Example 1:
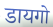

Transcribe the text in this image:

डायगो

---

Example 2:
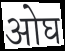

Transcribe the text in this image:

ओघ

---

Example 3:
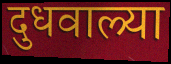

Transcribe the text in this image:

दुधवाल्या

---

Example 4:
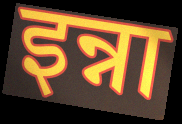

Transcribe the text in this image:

इन्ना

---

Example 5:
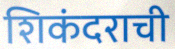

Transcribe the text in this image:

शिकंदराची